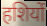
हशियों